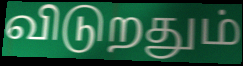
விடுறதும்